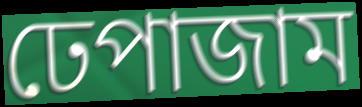
ঢেপাজাম